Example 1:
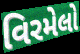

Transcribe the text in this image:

વિરમેલો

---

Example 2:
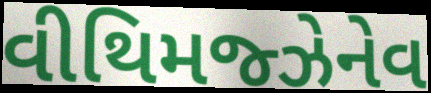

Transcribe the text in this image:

વીથિમજ્ઝેનેવ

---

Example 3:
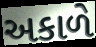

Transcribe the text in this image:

અકાળે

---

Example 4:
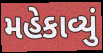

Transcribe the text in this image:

મહેકાવ્યું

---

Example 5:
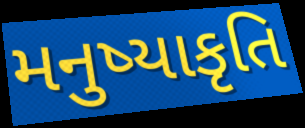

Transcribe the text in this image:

મનુષ્યાકૃતિ